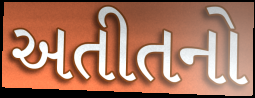
અતીતનો